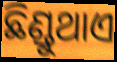
ଛିଣ୍ଡୁଥାଏ